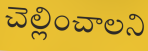
చెల్లించాలని